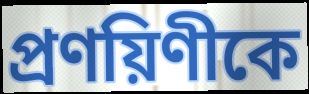
প্রণয়িণীকে